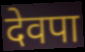
देवपा